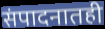
संपादनातही